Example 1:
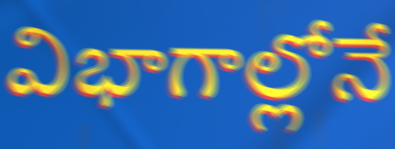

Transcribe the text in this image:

విభాగాల్లోనే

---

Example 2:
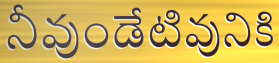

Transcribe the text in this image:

నీవుండేటివునికి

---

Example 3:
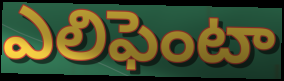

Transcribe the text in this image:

ఎలిఫెంటా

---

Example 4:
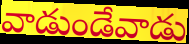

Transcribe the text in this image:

వాడుండేవాడు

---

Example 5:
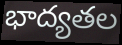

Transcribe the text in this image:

భాద్యతల